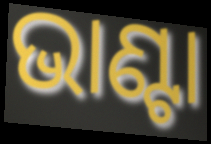
ଭାଣ୍ଟା